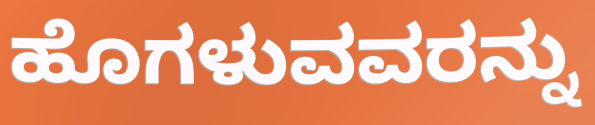
ಹೊಗಳುವವರನ್ನು